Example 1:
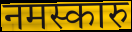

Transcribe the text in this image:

नमस्कारु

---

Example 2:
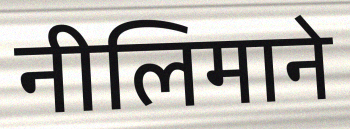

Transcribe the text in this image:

नीलिमाने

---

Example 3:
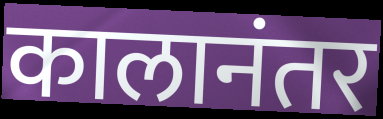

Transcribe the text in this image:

कालानंतर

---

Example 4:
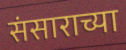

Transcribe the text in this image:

संसाराच्या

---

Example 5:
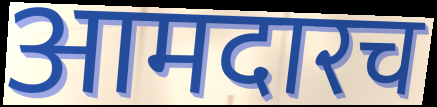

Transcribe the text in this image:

आमदारच